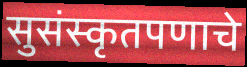
सुसंस्कृतपणाचे